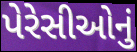
પેરેસીઓનું